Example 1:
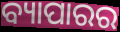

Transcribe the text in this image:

ବ୍ୟାପାରର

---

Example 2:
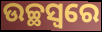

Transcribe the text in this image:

ଉଚ୍ଛସ୍ୱରେ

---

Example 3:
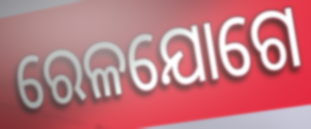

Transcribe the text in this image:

ରେଳଯୋଗେ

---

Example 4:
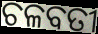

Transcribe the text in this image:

ଚଳବତୀ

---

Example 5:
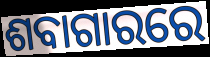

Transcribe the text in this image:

ଶବାଗାରରେ